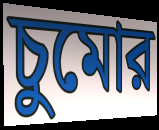
চুমোর